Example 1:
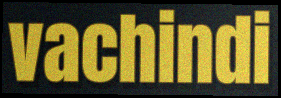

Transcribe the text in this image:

vachindi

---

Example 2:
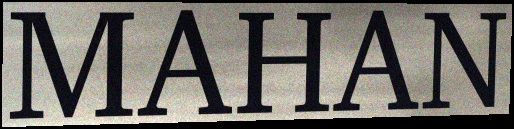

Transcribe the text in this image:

MAHAN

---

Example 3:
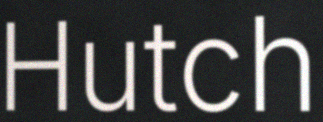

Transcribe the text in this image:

Hutch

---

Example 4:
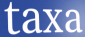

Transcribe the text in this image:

taxa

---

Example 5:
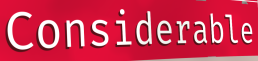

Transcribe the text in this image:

Considerable